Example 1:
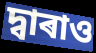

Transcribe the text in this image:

দ্বাৰাও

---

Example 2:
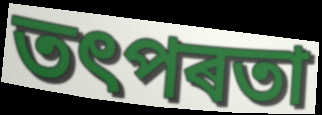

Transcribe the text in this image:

তৎপৰতা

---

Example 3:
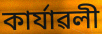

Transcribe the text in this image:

কাৰ্যাৱলী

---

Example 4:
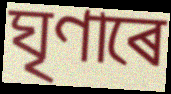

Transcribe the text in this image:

ঘৃণাৰে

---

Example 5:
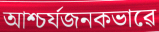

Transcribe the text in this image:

আশ্চৰ্যজনকভাৱে